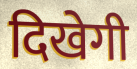
दिखेगी